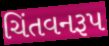
ચિંતવનરૂપ